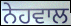
ਨੇਹਵਾਲ